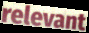
relevant